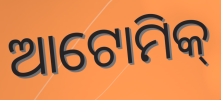
ଆଟୋମିକ୍